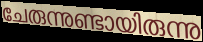
ചേരുന്നുണ്ടായിരുന്നു